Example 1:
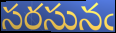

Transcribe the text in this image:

సరసునఁ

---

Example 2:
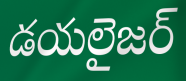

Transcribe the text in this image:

డయలైజర్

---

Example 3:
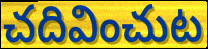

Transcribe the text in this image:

చదివించుట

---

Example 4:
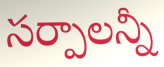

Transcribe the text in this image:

సర్పాలన్నీ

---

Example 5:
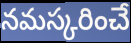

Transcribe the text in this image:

నమస్కరించే